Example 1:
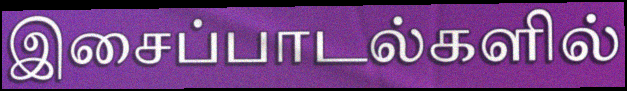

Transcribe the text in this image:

இசைப்பாடல்களில்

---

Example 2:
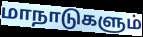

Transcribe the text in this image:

மாநாடுகளும்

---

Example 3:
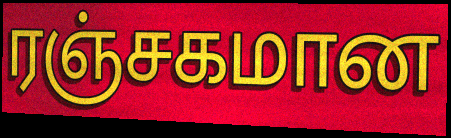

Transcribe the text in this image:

ரஞ்சகமான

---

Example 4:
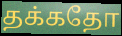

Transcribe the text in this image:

தக்கதோ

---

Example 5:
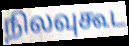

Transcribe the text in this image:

நிலவுகூட